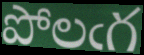
పోలఁగ